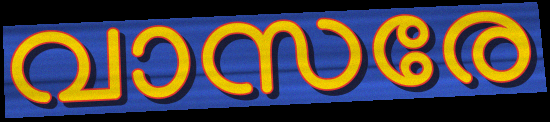
വാസരേ